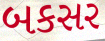
બકસર